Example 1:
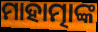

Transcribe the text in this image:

ମାହାତ୍ମାଙ୍କ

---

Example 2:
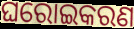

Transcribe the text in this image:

ଘରୋଇକରଣ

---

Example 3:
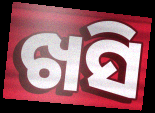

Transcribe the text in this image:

ଖସି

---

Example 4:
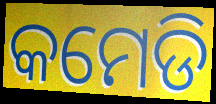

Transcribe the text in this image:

କମେଡି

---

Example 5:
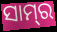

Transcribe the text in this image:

ସାମ୍‌ର